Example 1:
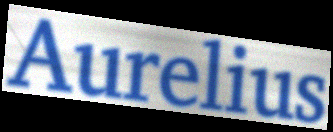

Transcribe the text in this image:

Aurelius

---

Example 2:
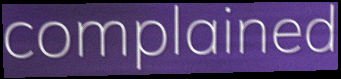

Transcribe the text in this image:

complained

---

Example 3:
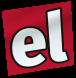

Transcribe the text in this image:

el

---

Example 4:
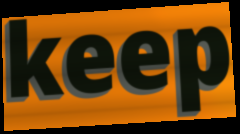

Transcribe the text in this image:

keep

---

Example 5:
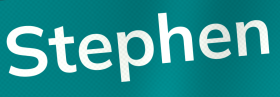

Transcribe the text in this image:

Stephen